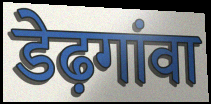
डेढ़गांवा